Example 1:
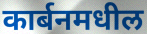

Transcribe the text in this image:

कार्बनमधील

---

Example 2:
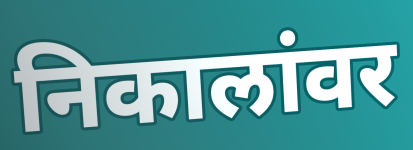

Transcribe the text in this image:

निकालांवर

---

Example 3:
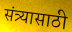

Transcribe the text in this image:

संत्र्यासाठी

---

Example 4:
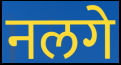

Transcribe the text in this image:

नलगे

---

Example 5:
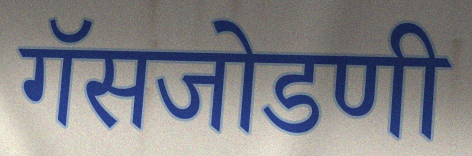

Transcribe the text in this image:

गॅसजोडणी